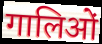
गालिओं